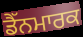
ਡੈੱਨਮਾਰਕ